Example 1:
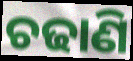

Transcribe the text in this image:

ଚଢାଣି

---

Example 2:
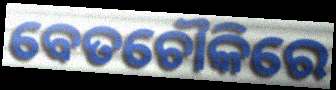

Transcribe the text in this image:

ବେତଚୌକିରେ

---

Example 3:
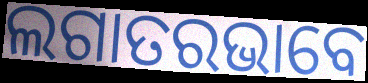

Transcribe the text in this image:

ଲଗାତରଭାବେ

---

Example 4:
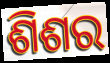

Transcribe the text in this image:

ଶିଶର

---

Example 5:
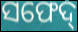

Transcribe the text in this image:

ସଫେଦ୍